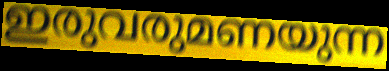
ഇരുവരുമണയുന്ന